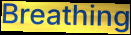
Breathing